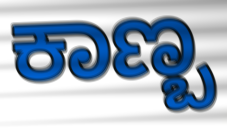
ಕಾಣ್ಬ